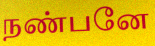
நண்பனே